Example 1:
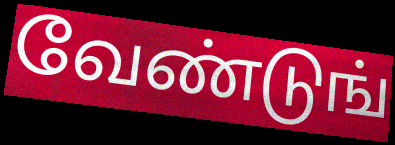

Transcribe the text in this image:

வேண்டுங்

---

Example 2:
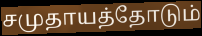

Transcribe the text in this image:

சமுதாயத்தோடும்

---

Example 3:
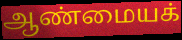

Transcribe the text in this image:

ஆண்மையக்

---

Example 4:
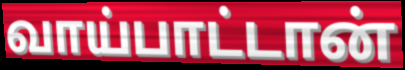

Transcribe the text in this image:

வாய்பாட்டான்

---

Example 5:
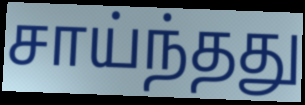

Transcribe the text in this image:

சாய்ந்தது